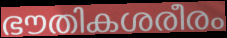
ഭൗതികശരീരം